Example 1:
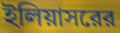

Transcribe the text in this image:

ইলিয়াসরের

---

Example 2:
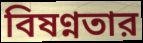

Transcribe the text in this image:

বিষণ্নতার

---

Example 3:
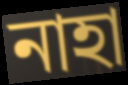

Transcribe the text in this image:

নাহা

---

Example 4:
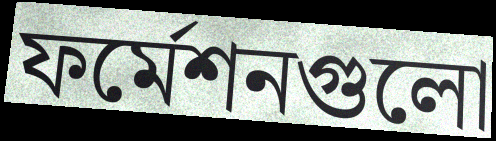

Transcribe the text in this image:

ফর্মেশনগুলো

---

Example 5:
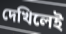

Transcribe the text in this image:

দেখিলেই